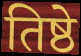
तिष्ठे